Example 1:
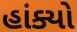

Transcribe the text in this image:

હાંક્યો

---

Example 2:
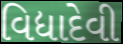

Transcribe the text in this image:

વિદ્યાદેવી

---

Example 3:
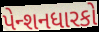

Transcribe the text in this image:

પેન્શનધારકો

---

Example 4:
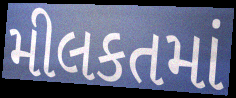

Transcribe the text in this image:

મીલકતમાં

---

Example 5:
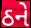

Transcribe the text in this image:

ઠને